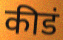
कीडं